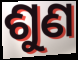
ଶୁଣ